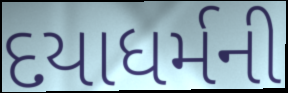
દયાધર્મની